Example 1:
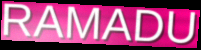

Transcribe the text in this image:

RAMADU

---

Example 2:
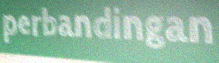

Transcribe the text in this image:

perbandingan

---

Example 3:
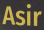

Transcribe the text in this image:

Asir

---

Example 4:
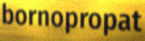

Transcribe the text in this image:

bornopropat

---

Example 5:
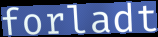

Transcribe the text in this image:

forladt